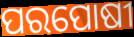
ପରପୋଷୀ